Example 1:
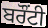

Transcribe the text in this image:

ਬਰੌਂਟੀ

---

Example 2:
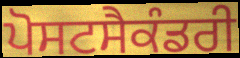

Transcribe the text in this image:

ਪੋਸਟਸੈਕੰਡਰੀ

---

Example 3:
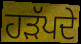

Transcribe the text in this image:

ਹੜੱਪਦੇ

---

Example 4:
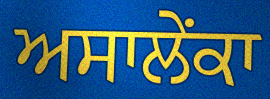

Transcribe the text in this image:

ਅਸਾਲੇਂਕਾ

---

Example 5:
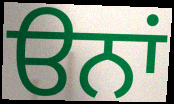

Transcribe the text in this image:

ੳਨਾਂ